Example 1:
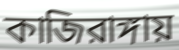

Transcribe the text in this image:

কাজিরাঙ্গায়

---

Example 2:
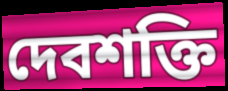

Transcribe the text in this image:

দেবশক্তি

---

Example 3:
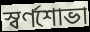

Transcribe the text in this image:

স্বর্ণশোভা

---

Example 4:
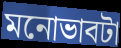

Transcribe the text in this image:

মনোভাবটা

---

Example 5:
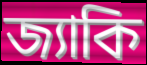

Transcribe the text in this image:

জ্যাকি